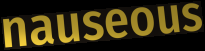
nauseous